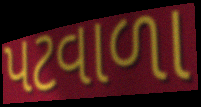
પટવાળા